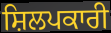
ਸ਼ਿਲਪਕਾਰੀ